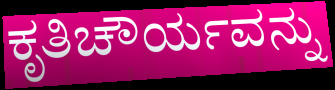
ಕೃತಿಚೌರ್ಯವನ್ನು